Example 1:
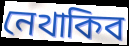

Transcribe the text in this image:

নেথাকিব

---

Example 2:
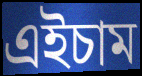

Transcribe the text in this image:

এইচাম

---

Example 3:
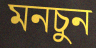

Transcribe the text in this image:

মনচুন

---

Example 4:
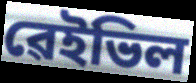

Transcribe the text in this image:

ৱেইভিল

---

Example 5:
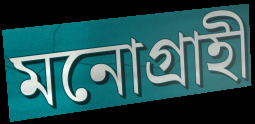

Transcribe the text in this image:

মনোগ্ৰাহী